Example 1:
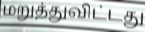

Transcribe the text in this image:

மறுத்துவிட்டது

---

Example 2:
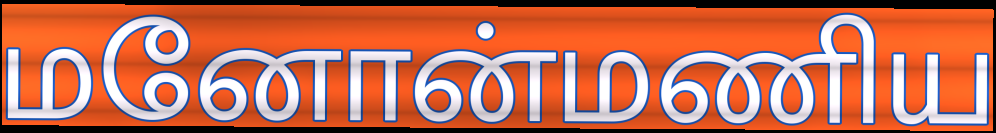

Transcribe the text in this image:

மனோன்மணிய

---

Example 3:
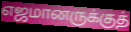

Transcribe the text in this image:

எஜமானருக்குத்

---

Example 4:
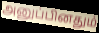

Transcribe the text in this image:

அனுப்பினதும்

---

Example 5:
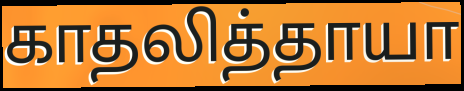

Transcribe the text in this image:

காதலித்தாயா